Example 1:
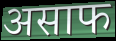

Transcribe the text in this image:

असाफ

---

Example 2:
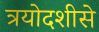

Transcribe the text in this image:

त्रयोदशीसे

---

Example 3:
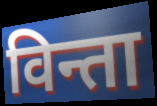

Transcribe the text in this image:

विन्ता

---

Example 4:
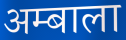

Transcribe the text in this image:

अम्बाला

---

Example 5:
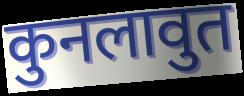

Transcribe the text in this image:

कुनलावुत